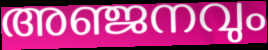
അഞ്ജനവും